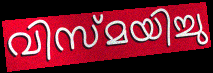
വിസ്മയിച്ചു